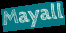
Mayall